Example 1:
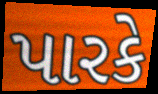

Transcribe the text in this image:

પારકે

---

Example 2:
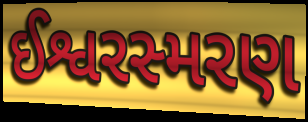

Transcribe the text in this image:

ઈશ્વરસ્મરણ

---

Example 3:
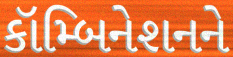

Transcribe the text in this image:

કૉમ્બિનેશનને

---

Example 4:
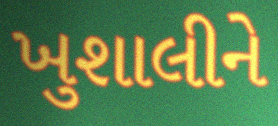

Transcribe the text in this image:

ખુશાલીને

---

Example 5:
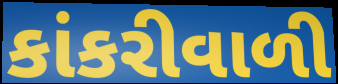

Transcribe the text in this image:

કાંકરીવાળી